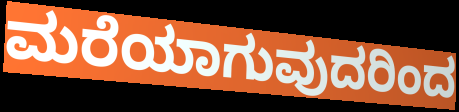
ಮರೆಯಾಗುವುದರಿಂದ